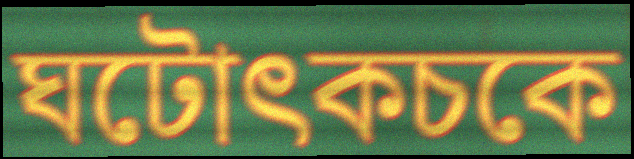
ঘটোৎকচকে